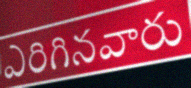
ఎరిగినవారు